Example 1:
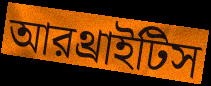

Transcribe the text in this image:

আরথ্রাইটিস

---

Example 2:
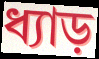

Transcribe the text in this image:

ধ্যাড়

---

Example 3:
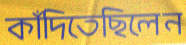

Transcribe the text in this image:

কাঁদিতেছিলেন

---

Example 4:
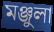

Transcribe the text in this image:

মঞ্জুলা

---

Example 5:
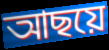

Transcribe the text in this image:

আছয়ে